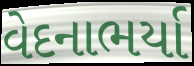
વેદનાભર્યા